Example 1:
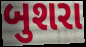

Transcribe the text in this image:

બુશરા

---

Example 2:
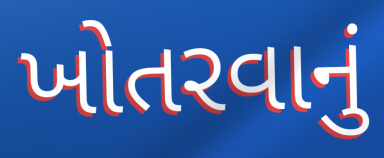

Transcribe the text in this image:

ખોતરવાનું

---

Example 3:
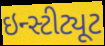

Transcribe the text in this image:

ઇન્સ્ટીટ્યૂટ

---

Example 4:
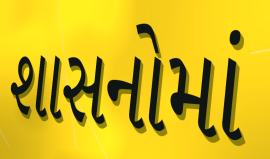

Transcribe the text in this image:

શાસનોમાં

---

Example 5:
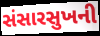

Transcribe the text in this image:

સંસારસુખની